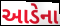
આડેના